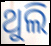
ଥୁଲି